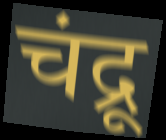
चंद्रू